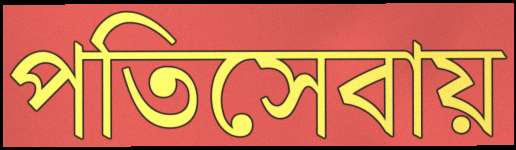
পতিসেবায়